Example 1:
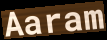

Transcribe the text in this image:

Aaram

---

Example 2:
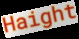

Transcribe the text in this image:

Haight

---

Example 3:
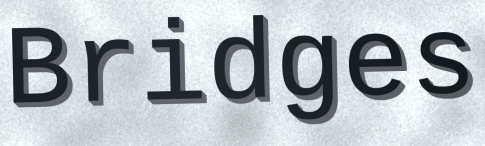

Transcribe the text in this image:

Bridges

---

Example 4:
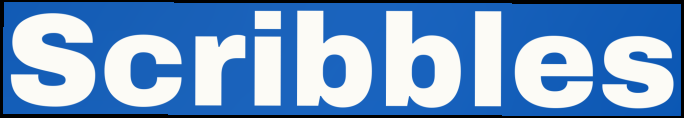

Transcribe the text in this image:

Scribbles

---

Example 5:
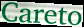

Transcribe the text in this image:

Careto